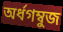
অর্ধগম্বুজ